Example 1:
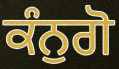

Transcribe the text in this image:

ਕੰਨੁਗੋ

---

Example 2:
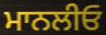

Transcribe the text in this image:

ਮਾਨਲੀਓ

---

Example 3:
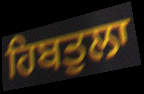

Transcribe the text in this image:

ਹਿਬਤੁਲਾ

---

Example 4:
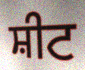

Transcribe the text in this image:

ਸ਼ੀਟ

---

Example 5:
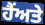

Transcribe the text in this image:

ਹੈਂਅਤੇ